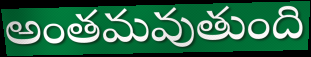
అంతమవుతుంది